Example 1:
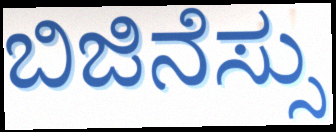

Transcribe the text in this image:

ಬಿಜಿನೆಸ್ಸು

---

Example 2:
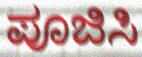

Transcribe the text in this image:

ಪೂಜಿಸಿ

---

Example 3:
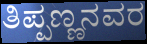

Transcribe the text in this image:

ತಿಪ್ಪಣ್ಣನವರ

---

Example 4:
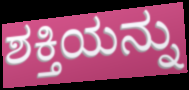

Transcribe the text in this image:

ಶಕ್ತಿಯನ್ನು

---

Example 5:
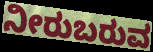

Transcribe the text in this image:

ನೀರುಬರುವ